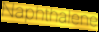
Naphthalene